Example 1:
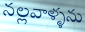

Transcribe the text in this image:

నల్లవాళ్ళను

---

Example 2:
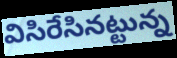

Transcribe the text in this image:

విసిరేసినట్టున్న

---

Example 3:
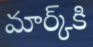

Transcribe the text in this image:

మార్క్‌కి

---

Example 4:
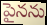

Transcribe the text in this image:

పైనను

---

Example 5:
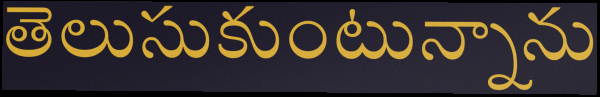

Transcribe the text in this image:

తెలుసుకుంటున్నాను